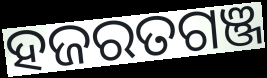
ହଜରତଗଞ୍ଜ